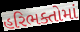
હરિભક્તોમાં